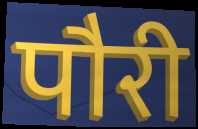
पौरी